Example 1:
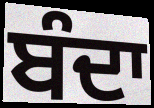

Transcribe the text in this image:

ਬੰਦਾ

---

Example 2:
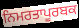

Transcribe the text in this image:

ਨਿਮਰਤਾਪੂਰਬਕ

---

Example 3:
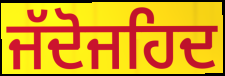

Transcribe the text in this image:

ਜੱਦੋਜਹਿਦ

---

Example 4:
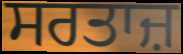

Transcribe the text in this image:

ਸਰਤਾਜ਼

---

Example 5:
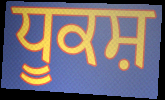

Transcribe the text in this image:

ਧੂਕਸ਼